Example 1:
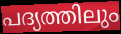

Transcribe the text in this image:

പദ്യത്തിലും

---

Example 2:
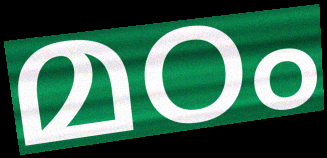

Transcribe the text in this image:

മഠം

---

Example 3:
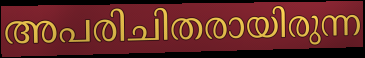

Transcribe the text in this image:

അപരിചിതരായിരുന്ന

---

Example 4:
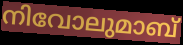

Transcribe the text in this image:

നിവോലുമാബ്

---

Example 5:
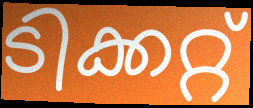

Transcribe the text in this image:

ടിക്കറ്റ്